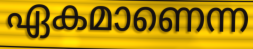
ഏകമാണെന്ന